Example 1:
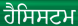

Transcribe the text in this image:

ਹੈਸਿਸਟਮ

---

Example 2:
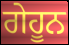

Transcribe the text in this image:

ਗੇਹੂਨ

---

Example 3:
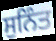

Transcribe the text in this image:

ਸੁਨਿੰਤ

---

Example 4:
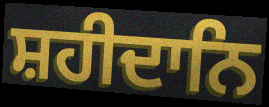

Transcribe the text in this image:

ਸ਼ਹੀਦਾਨਿ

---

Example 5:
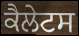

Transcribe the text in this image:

ਕੈਲੇਟਸ